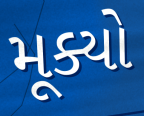
મૂક્યો